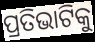
ପ୍ରତିଭାଟିକୁ